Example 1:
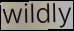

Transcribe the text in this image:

wildly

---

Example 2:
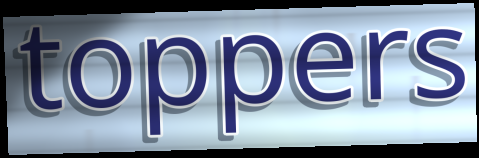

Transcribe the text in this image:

toppers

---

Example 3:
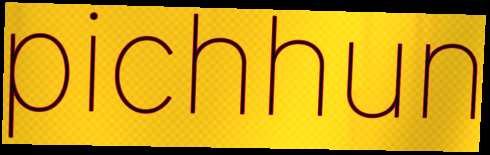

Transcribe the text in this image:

pichhun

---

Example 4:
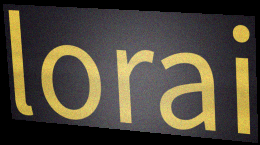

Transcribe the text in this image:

lorai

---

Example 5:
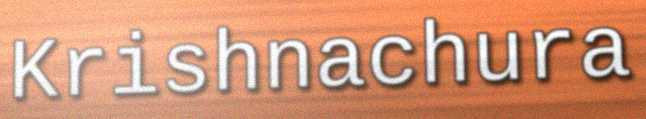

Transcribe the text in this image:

Krishnachura